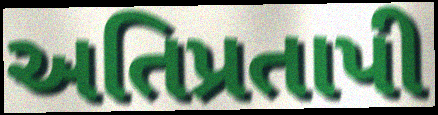
અતિપ્રતાપી